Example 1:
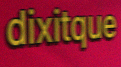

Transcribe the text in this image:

dixitque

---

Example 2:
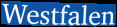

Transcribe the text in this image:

Westfalen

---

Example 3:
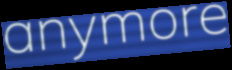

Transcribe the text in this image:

anymore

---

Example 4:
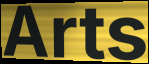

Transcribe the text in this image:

Arts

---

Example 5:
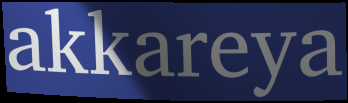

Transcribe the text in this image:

akkareya